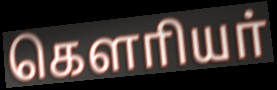
கௌரியர்